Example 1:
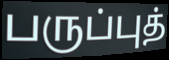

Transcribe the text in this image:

பருப்புத்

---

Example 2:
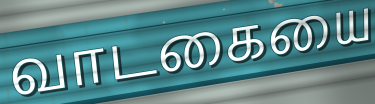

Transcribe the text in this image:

வாடகையை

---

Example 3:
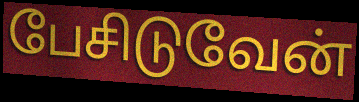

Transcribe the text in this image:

பேசிடுவேன்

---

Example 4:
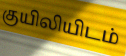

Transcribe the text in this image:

குயிலியிடம்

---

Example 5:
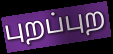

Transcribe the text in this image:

புறப்புற